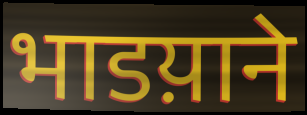
भाडय़ाने